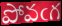
పోవఁగ